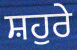
ਸ਼ਹੁਰੇ